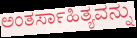
ಅಂತರ್ಸಾಹಿತ್ಯವನ್ನು